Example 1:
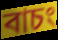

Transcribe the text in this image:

বাচং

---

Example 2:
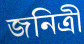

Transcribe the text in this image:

জনিত্রী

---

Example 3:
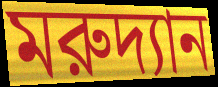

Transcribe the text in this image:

মরুদ্যান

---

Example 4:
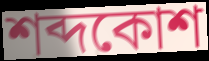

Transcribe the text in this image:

শব্দকোশ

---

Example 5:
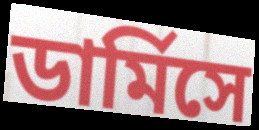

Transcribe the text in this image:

ডার্মিসে